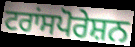
ਟਰਾਂਸਪੋਰੇਸ਼ਨ